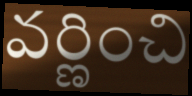
వర్ణించి